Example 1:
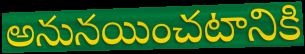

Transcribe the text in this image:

అనునయించటానికి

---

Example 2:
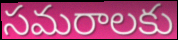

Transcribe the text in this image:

సమరాలకు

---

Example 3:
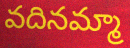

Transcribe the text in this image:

వదినమ్మా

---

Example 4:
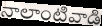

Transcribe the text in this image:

నాలాంటివాడి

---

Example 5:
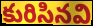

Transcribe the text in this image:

కురిసినవి